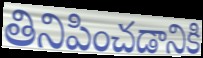
తినిపించడానికి